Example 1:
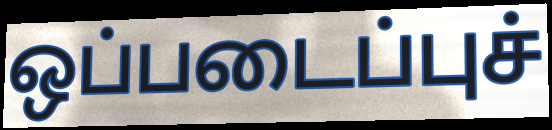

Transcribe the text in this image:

ஒப்படைப்புச்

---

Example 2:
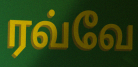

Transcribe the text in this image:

ரவ்வே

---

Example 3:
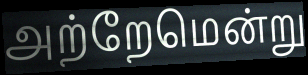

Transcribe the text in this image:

அற்றேமென்று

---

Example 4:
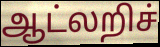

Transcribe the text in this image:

ஆட்லறிச்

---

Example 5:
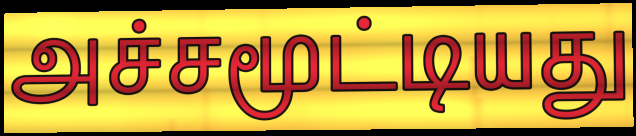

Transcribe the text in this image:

அச்சமூட்டியது